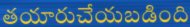
తయారుచేయబడింది